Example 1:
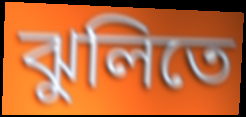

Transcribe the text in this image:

ঝুলিতে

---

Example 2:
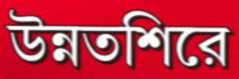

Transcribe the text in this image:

উন্নতশিরে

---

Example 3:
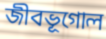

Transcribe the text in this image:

জীবভূগোল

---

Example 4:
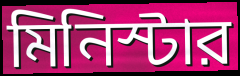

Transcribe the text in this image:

মিনিস্টার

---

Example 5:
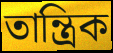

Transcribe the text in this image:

তান্ত্রিক